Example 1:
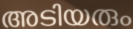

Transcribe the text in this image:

അടിയരും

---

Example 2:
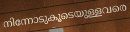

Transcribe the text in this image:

നിന്നോടുകൂടെയുള്ളവരെ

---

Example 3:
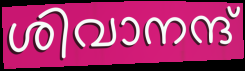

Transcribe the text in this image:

ശിവാനന്ദ്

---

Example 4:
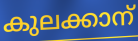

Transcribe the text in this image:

കുലക്കാന്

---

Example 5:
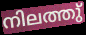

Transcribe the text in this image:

നിലത്തു്